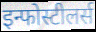
इन्फोस्टीलर्स